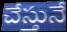
చేస్తునే